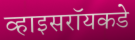
व्हाइसरॉयकडे